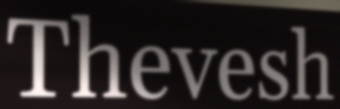
Thevesh